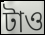
টাও